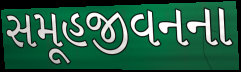
સમૂહજીવનના